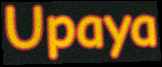
Upaya